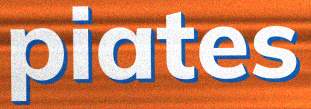
piates